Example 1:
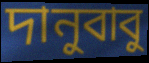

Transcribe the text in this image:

দানুবাবু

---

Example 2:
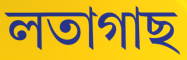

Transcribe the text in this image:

লতাগাছ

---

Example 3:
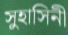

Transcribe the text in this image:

সুহাসিনী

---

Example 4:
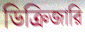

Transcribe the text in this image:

ডিক্রিজারি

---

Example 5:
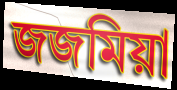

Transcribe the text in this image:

জজমিয়া